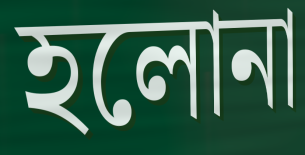
হলোনা